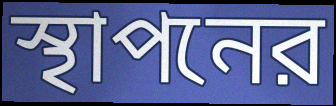
স্থাপনের